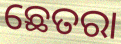
ଛେତରା